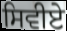
ਸਿਵੀਏ